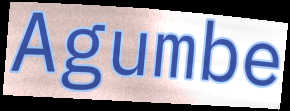
Agumbe